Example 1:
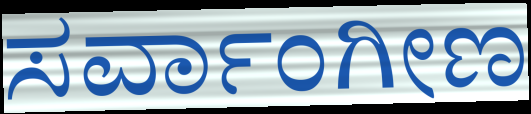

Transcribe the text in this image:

ಸರ್ವಾಂಗೀಣ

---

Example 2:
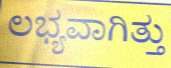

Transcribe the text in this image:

ಲಭ್ಯವಾಗಿತ್ತು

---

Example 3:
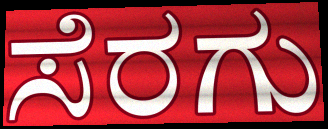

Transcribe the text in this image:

ಸೆರಗು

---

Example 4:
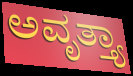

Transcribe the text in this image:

ಅವೃತ್ತ್ಯಾ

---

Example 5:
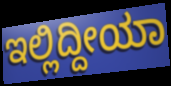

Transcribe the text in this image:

ಇಲ್ಲಿದ್ದೀಯಾ